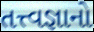
તત્ત્વજ્ઞાનો